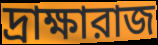
দ্রাক্ষারাজ